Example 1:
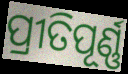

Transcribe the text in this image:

ପ୍ରୀତିପୂର୍ଣ୍ଣ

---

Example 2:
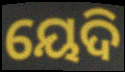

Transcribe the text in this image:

ୟେଦି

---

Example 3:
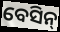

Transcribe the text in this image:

ବେସିନ୍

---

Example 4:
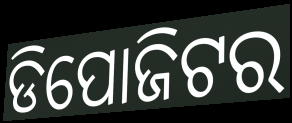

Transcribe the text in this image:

ଡିପୋଜିଟର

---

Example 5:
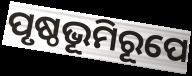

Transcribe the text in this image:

ପୃଷ୍ଠଭୂମିରୂପେ